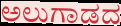
ಅಲುಗಾಡದ